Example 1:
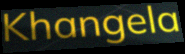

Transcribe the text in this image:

Khangela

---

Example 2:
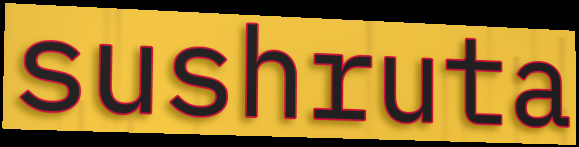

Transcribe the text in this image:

sushruta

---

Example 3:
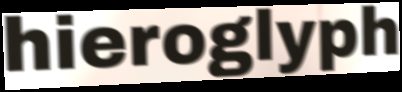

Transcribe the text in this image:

hieroglyph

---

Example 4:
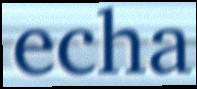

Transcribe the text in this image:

echa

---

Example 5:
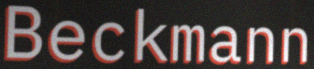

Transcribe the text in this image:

Beckmann